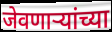
जेवणाऱ्यांच्या